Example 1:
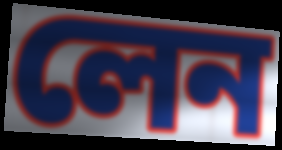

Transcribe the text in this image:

লেন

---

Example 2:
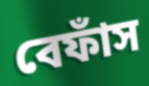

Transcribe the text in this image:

বেফাঁস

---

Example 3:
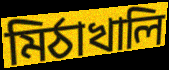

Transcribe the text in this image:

মিঠাখালি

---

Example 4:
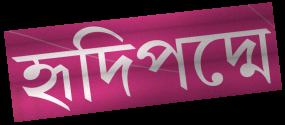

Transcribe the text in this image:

হৃদিপদ্মে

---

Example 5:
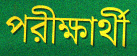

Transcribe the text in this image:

পরীক্ষার্থী